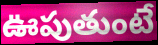
ఊపుతుంటే